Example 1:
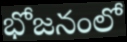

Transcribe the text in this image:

భోజనంలో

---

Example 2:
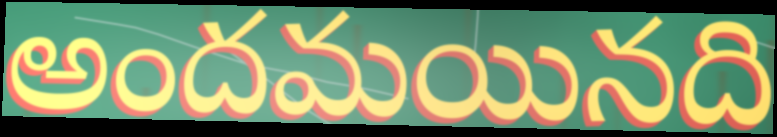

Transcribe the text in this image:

అందమయినది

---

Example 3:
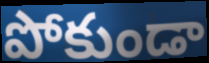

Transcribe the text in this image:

పోకుండా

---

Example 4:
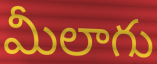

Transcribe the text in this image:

మీలాగు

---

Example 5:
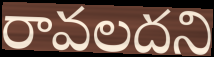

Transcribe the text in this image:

రావలదని